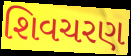
શિવચરણ